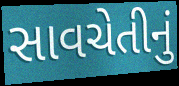
સાવચેતીનું